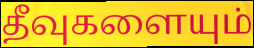
தீவுகளையும்